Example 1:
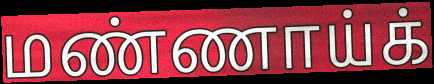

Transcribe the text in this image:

மண்ணாய்க்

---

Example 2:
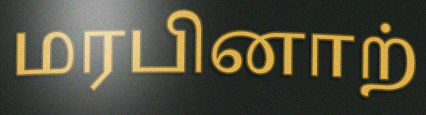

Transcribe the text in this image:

மரபினாற்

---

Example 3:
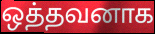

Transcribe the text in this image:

ஒத்தவனாக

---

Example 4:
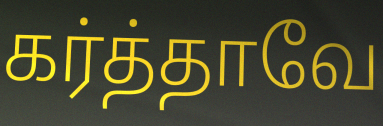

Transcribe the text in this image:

கர்த்தாவே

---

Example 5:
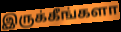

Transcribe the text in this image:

இருக்கீங்களா